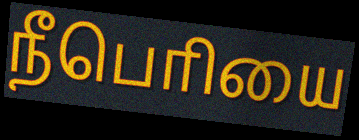
நீபெரியை